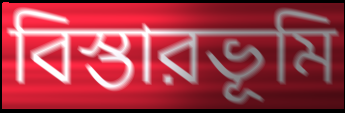
বিস্তারভূমি